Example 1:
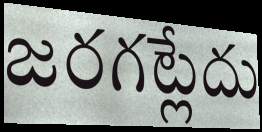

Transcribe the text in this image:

జరగట్లేదు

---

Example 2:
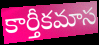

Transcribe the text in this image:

కార్తీకమాస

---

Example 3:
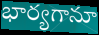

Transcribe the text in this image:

భార్యగానూ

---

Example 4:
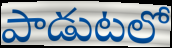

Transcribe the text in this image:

పాడుటలో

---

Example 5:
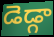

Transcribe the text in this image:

డెడ్గా